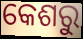
କେଶରୁ